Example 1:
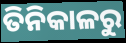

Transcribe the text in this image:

ତିନିକାଳରୁ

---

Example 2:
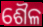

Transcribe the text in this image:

ଶୈଳ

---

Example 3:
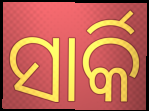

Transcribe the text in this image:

ସାର୍କି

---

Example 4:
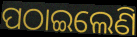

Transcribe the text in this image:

ପଠାଇଲେଣି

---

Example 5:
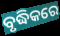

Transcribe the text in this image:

ବୃଦ୍ଧିକରେ